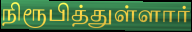
நிரூபித்துள்ளார்